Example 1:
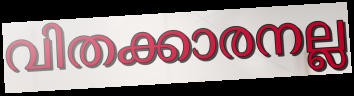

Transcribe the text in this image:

വിതക്കാരനല്ല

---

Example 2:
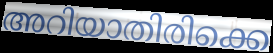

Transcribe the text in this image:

അറിയാതിരിക്കെ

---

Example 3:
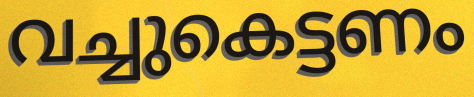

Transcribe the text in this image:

വച്ചുകെട്ടണം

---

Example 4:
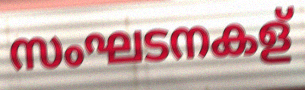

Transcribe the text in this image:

സംഘടനകള്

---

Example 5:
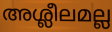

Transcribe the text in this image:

അശ്ലീലമല്ല